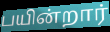
பயின்றார்